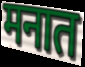
मनात